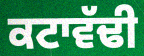
ਕਟਾਵੱਢੀ